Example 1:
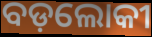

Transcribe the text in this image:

ବଡ଼ଲୋକୀ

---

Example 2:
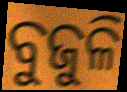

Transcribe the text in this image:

ବୁଜୁଳି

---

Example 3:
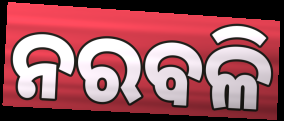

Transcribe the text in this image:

ନରବଳି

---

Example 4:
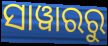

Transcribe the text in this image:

ସାୱାରରୁ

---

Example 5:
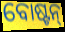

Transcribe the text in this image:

ବୋଷ୍ଟନ୍